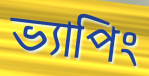
ভ্যাপিং